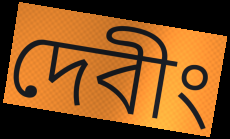
দেবীং